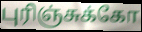
புரிஞ்சுக்கோ